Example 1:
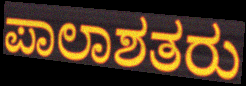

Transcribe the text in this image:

ಪಾಲಾಶತರು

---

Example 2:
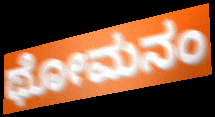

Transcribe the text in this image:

ಥೋಮನಂ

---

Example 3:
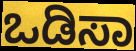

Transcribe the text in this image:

ಒಡಿಸಾ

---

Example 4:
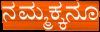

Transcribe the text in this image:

ನಮ್ಮಕ್ಕನೂ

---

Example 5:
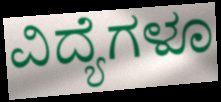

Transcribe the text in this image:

ವಿದ್ಯೆಗಳೂ